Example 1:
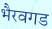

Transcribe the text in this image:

भैरवगड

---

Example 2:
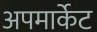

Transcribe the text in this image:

अपमार्केट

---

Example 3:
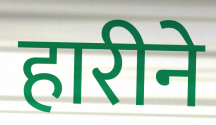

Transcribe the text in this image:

हारीने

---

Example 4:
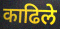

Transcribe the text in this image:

काढिले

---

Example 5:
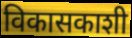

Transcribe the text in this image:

विकासकाशी